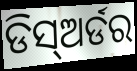
ଡିସ୍ଅର୍ଡର